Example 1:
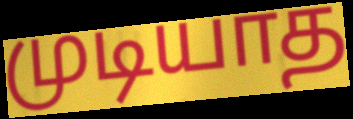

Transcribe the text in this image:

முடியாத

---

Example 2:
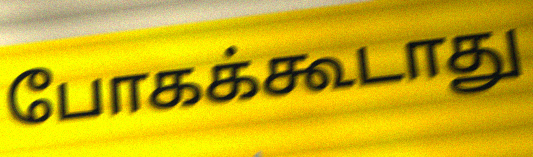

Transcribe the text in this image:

போகக்கூடாது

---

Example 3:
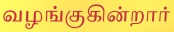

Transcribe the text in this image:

வழங்குகின்றார்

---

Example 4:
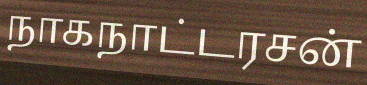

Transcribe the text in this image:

நாகநாட்டரசன்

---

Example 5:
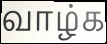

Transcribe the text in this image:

வாழ்க